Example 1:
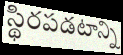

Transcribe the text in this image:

స్థిరపడటాన్ని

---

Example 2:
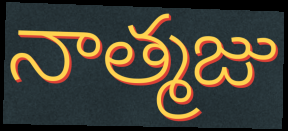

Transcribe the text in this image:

నాత్మజు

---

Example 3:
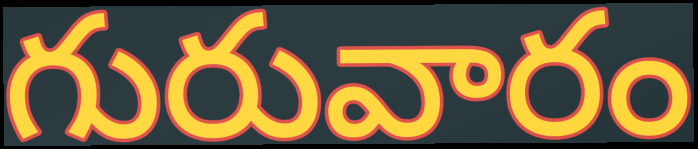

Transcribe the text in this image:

గురువారం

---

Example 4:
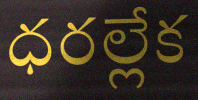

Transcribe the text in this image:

ధరల్లేక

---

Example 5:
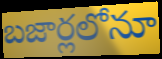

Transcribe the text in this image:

బజార్లలోనూ